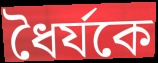
ধৈর্যকে